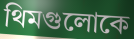
থিমগুলোকে